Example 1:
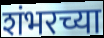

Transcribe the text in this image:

शंभरच्या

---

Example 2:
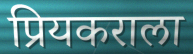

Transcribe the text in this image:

प्रियकराला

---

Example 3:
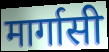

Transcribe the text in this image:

मार्गासी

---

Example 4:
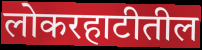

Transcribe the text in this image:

लोकरहाटीतील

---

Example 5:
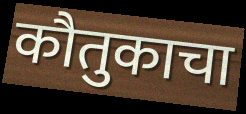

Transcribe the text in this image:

कौतुकाचा